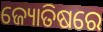
ଜ୍ୟୋତିଷରେ